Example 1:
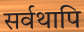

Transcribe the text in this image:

सर्वथापि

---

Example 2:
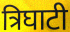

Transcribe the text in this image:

त्रिघाटी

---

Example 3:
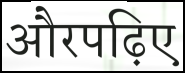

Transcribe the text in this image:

औरपढ़िए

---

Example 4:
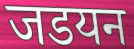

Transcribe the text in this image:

जडयन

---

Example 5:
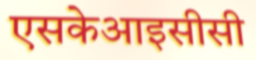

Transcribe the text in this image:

एसकेआइसीसी